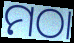
ମଠା